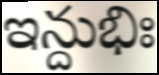
ఇన్దుభిః